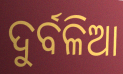
ଦୁର୍ବଳିଆ